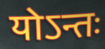
योऽन्तः